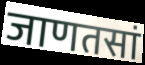
जाणतसां